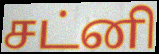
சட்னி